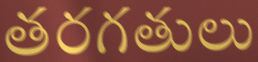
తరగతులు